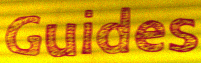
Guides